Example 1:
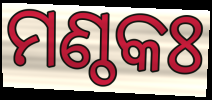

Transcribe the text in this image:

ମଣ୍ଠକଃ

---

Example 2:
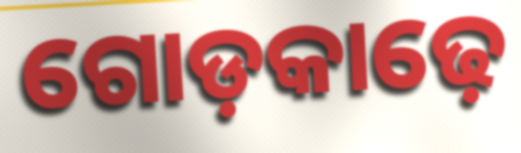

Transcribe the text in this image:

ଗୋଡ଼କାଢ଼େ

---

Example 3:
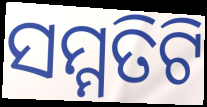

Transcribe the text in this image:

ସମ୍ମତିଟି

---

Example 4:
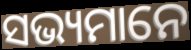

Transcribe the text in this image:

ସଭ୍ୟମାନେ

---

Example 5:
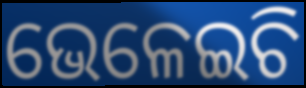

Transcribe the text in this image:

ଭେଳେଇଚି